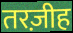
तरज़ीह